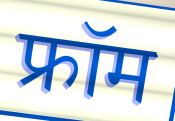
फ्रॉम